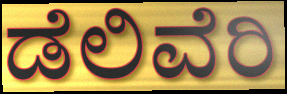
ಡೆಲಿವೆರಿ